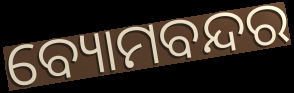
ବ୍ୟୋମବନ୍ଦର